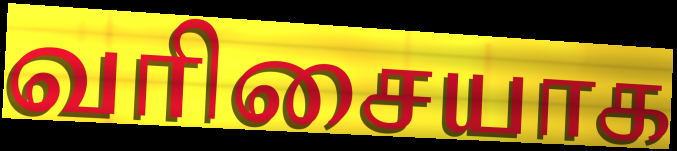
வரிசையாக